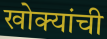
खोक्यांची